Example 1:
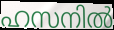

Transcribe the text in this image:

ഹസനിൽ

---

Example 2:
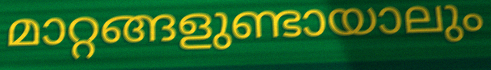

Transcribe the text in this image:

മാറ്റങ്ങളുണ്ടായാലും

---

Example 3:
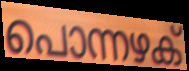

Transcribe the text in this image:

പൊന്നഴക്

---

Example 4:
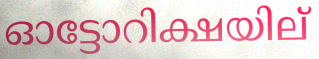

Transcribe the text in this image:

ഓട്ടോറിക്ഷയില്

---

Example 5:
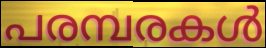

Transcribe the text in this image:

പരമ്പരകൾ